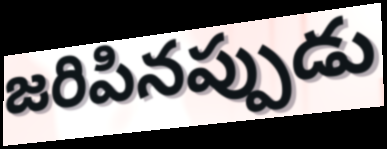
జరిపినప్పుడు